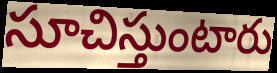
సూచిస్తుంటారు